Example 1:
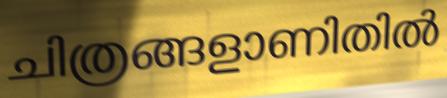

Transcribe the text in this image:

ചിത്രങ്ങളാണിതിൽ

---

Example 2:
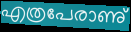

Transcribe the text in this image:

എത്രപേരാണു്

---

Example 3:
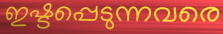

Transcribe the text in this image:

ഇഷ്ടപ്പെടുന്നവരെ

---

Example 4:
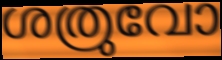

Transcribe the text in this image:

ശത്രുവോ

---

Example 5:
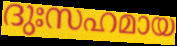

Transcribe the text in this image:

ദുഃസഹമായ